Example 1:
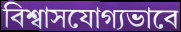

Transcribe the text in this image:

বিশ্বাসযোগ্যভাবে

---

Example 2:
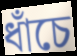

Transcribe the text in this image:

ধাঁচে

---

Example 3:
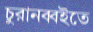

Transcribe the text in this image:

চুরানব্বইতে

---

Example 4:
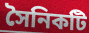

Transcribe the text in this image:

সৈনিকটি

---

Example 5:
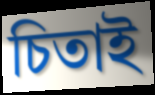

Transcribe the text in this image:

চিতাই